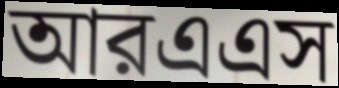
আরএএস